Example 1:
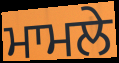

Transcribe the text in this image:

ਮਾਮਲੇ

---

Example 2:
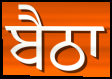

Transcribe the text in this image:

ਬੈਠਾ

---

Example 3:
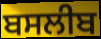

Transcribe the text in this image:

ਬਸਲੀਬ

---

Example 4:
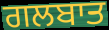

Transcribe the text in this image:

ਗਲਬਾਤ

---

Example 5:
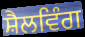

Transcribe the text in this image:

ਸ਼ੈਲਵਿੰਗ